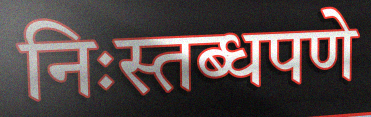
निःस्तब्धपणे